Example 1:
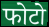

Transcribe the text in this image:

फोटो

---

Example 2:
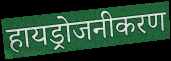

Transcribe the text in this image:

हायड्रोजनीकरण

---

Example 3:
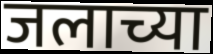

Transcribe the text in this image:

जलाच्या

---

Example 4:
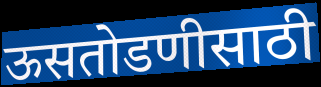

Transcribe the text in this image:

ऊसतोडणीसाठी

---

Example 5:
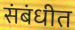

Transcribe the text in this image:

संबंधीत